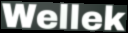
Wellek